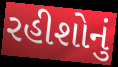
રહીશોનું